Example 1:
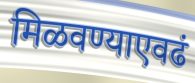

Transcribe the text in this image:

मिळवण्याएवढं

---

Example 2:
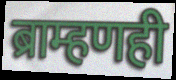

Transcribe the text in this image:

ब्राम्हणही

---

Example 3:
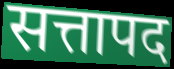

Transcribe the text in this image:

सत्तापद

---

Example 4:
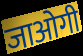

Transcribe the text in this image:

जाओगी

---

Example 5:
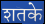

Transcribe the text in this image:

शतके